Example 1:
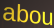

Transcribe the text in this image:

abou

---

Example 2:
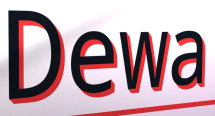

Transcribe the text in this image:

Dewa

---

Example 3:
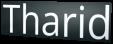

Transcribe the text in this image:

Tharid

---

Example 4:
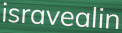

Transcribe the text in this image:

isravealin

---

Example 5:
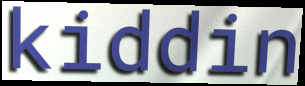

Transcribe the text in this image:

kiddin